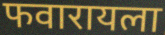
फवारायला